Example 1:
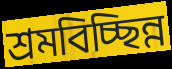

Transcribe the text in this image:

শ্রমবিচ্ছিন্ন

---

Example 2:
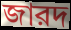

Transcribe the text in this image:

জারদ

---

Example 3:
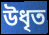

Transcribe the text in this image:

উধৃত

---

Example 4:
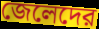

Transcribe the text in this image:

জেলেদের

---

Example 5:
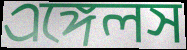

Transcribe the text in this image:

এঙ্গেলস